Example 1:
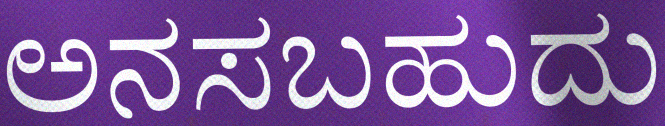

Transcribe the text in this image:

ಅನಸಬಹುದು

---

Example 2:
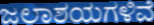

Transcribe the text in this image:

ಜಲಾಶಯಗಳಿವೆ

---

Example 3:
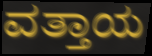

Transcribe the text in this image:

ವತ್ತಾಯ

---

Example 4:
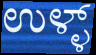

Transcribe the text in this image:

ಉಳ್ಳ್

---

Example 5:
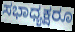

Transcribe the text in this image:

ಸಭಾಧ್ಯಕ್ಷರೂ